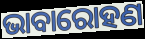
ଭାବାରୋହଣ